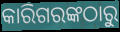
କାରିଗରଙ୍କଠାରୁ